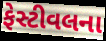
ફેસ્ટીવલના